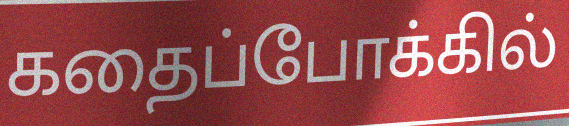
கதைப்போக்கில்